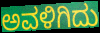
ಅವಳಿಗಿದು